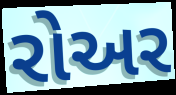
રોઅર